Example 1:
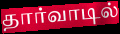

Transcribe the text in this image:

தார்வாடில்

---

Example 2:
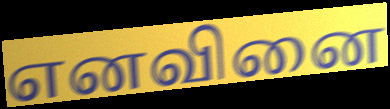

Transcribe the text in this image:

எனவினை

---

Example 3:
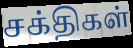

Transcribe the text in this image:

சக்திகள்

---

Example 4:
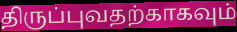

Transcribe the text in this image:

திருப்புவதற்காகவும்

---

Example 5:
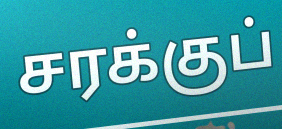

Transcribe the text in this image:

சரக்குப்